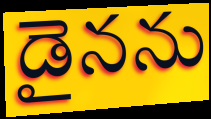
డైనను